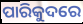
ପାରିକୁଦରେ